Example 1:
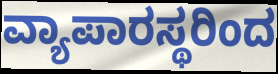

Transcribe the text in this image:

ವ್ಯಾಪಾರಸ್ಥರಿಂದ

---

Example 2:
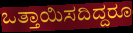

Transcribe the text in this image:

ಒತ್ತಾಯಿಸದಿದ್ದರೂ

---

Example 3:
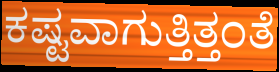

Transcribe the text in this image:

ಕಷ್ಟವಾಗುತ್ತಿತ್ತಂತೆ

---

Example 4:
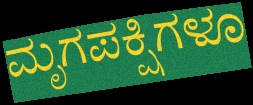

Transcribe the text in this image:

ಮೃಗಪಕ್ಷಿಗಳೂ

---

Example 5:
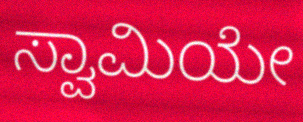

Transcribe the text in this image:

ಸ್ವಾಮಿಯೇ